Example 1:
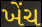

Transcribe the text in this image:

ખેંચ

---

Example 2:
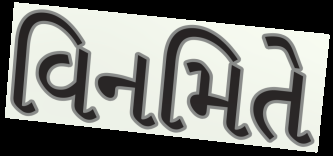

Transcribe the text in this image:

વિનમિતે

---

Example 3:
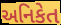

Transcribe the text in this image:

અનિકેત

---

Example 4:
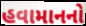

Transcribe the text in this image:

હવામાનનો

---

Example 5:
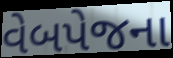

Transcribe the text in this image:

વેબપેજના